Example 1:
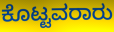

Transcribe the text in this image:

ಕೊಟ್ಟವರಾರು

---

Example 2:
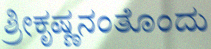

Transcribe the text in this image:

ಶ್ರೀಕೃಷ್ಣನಂತೊಂದು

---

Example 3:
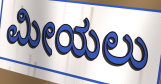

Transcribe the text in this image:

ಮೀಯಲು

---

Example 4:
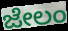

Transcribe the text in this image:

ಜೇಲಂ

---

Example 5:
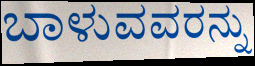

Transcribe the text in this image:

ಬಾಳುವವರನ್ನು